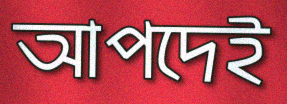
আপদেই